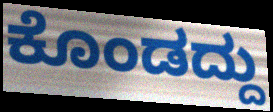
ಕೊಂಡದ್ದು